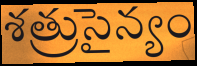
శత్రుసైన్యం